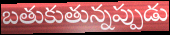
బతుకుతున్నప్పుడు